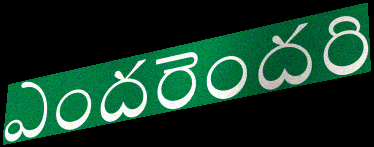
ఎందరెందరి